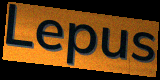
Lepus